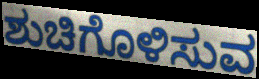
ಶುಚಿಗೊಳಿಸುವ